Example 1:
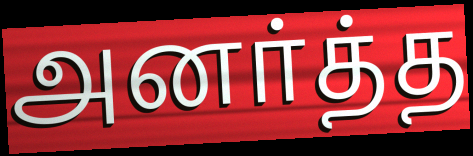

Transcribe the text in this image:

அனர்த்த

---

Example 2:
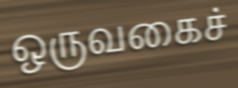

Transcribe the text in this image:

ஒருவகைச்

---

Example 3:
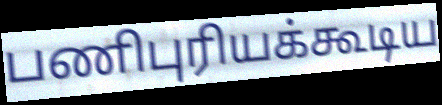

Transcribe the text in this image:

பணிபுரியக்கூடிய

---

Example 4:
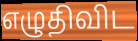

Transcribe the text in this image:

எழுதிவிட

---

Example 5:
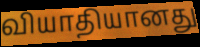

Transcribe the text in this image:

வியாதியானது